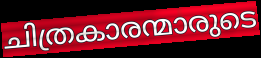
ചിത്രകാരന്മാരുടെ